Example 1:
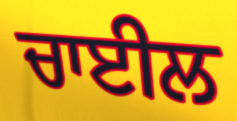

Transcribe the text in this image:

ਚਾਈਲ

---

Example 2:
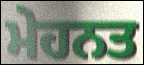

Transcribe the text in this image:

ਮੇਹਨਤ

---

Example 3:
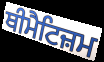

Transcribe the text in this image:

ਥੀਮੈਟਿਜ਼ਮ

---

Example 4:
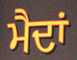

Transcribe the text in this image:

ਮੈਦਾਂ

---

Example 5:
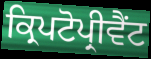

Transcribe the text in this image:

ਕ੍ਰਿਪਟੋਪ੍ਰੀਵੈਂਟ